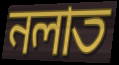
নলাত